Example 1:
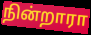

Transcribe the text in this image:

நின்றாரா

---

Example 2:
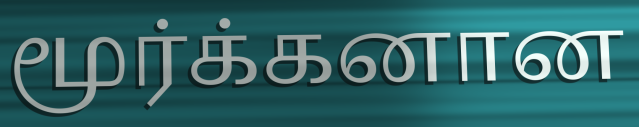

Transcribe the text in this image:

மூர்க்கனான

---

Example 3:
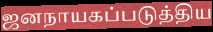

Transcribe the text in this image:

ஜனநாயகப்படுத்திய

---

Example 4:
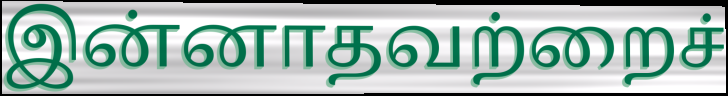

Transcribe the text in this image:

இன்னாதவற்றைச்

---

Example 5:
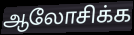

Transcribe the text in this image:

ஆலோசிக்க